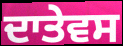
ਦਾਤੇਵਸ